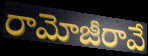
రామోజీరావే